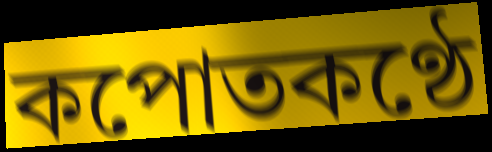
কপোতকণ্ঠে